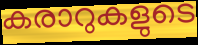
കരാറുകളുടെ